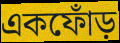
একফোঁড়